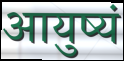
आयुष्यं